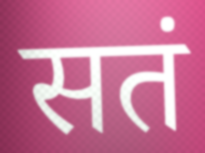
सतं